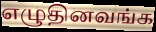
எழுதினவங்க